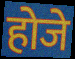
होजे